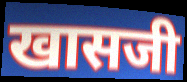
खासजी